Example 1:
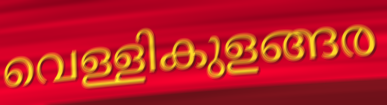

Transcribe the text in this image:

വെള്ളികുളങ്ങര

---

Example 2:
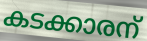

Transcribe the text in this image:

കടക്കാരന്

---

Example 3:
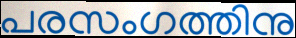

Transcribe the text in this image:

പരസംഗത്തിനു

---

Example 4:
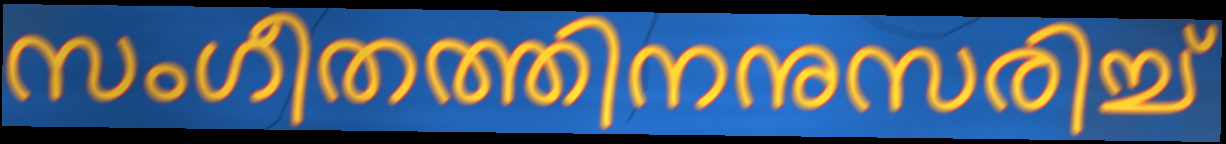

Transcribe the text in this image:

സംഗീതത്തിനനുസരിച്ച്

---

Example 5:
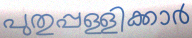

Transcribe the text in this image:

പുതുപ്പള്ളിക്കാർ